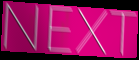
NEXT